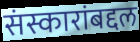
संस्कारांबद्दल